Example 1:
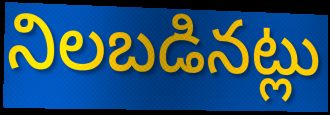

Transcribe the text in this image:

నిలబడినట్లు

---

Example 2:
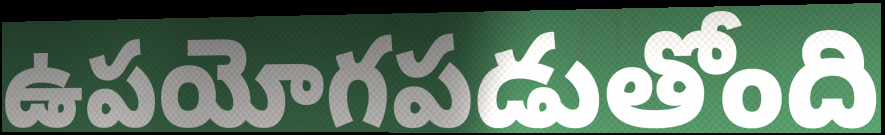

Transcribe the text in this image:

ఉపయోగపడుతోంది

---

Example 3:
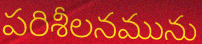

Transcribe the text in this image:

పరిశీలనమును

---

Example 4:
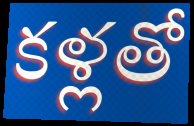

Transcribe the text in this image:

కళ్లతో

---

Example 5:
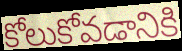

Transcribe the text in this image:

కోలుకోవడానికి